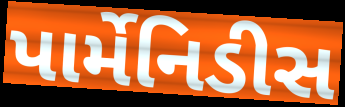
પાર્મેનિડીસ